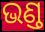
ଭଣ୍ଡ